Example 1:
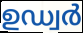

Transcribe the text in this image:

ഉഡ്വർ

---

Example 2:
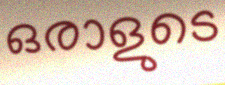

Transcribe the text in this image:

ഒരാളുടെ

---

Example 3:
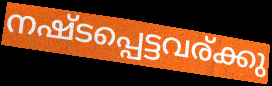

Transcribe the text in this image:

നഷ്ടപ്പെട്ടവര്ക്കു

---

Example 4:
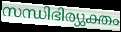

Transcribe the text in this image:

സന്ധിഭിര്യുക്തം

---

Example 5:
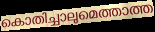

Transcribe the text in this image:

കൊതിച്ചാലുമെത്താത്ത